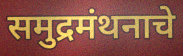
समुद्रमंथनाचे